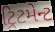
ટ્રિટમેન્ટ